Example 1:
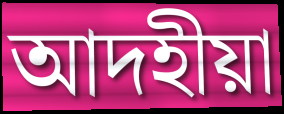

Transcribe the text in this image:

আদহীয়া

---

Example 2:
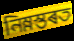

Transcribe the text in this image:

নিম্নস্তৰত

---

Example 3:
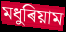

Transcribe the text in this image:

মধুৰিয়াম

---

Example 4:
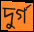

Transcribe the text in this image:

দুৰ্গ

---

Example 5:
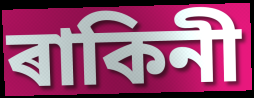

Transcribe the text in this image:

ৰাকিনী